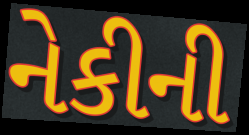
નેકીની